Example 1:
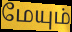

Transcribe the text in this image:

மேயும்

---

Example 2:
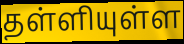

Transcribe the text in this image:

தள்ளியுள்ள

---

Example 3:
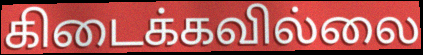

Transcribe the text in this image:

கிடைக்கவில்லை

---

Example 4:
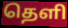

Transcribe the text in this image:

தெளி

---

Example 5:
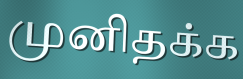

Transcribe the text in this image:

முனிதக்க